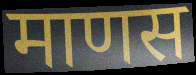
माणस